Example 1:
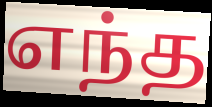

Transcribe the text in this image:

எந்த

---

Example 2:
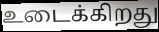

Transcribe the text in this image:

உடைக்கிறது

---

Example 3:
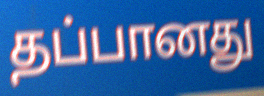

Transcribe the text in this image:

தப்பானது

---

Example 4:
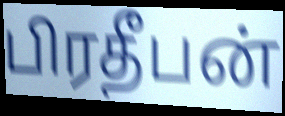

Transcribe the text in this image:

பிரதீபன்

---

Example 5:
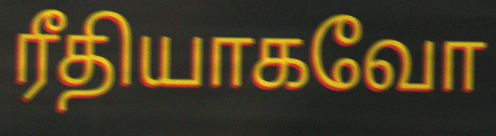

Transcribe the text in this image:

ரீதியாகவோ